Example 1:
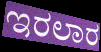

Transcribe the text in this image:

ಇರಲಾರ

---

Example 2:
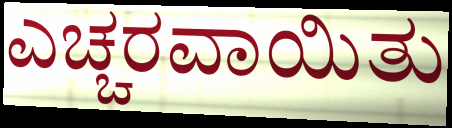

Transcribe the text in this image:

ಎಚ್ಚರವಾಯಿತು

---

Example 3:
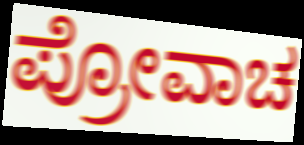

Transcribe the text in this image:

ಪ್ರೋವಾಚ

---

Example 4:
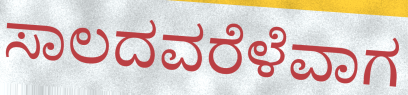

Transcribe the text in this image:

ಸಾಲದವರೆಳೆವಾಗ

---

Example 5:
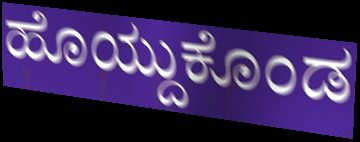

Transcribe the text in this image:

ಹೊಯ್ದುಕೊಂಡ